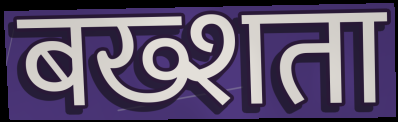
बख्शता